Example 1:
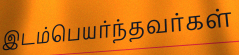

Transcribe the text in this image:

இடம்பெயர்ந்தவர்கள்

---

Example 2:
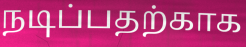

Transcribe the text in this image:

நடிப்பதற்காக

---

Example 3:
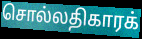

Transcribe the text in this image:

சொல்லதிகாரக்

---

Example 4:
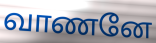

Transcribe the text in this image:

வாணனே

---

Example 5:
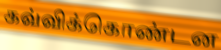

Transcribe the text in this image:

கவ்விக்கொண்டன